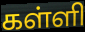
கள்ளி